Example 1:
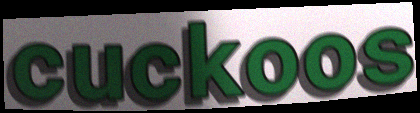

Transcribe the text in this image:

cuckoos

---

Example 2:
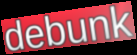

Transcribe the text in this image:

debunk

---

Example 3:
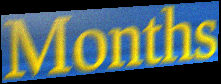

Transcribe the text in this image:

Months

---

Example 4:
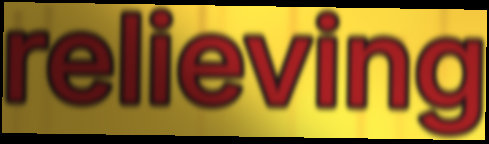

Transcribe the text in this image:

relieving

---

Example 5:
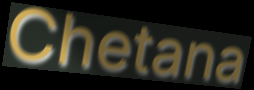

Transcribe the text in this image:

Chetana